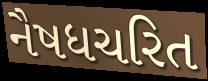
નૈષધચરિત